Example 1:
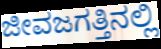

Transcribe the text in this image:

ಜೀವಜಗತ್ತಿನಲ್ಲಿ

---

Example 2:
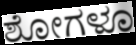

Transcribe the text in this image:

ಶೋಗಳೂ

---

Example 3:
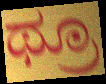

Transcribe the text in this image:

ಥ್ರೂ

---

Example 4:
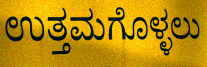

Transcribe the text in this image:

ಉತ್ತಮಗೊಳ್ಳಲು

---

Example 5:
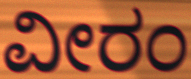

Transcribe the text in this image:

ವೀರಂ